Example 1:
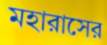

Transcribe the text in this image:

মহারাসের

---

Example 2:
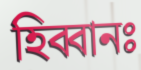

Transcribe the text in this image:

হিব্বানঃ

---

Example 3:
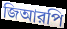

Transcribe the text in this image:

জিআরপি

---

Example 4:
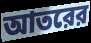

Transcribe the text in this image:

আতরের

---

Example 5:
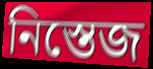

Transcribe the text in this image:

নিস্তেজ